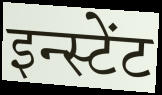
इन्स्टेंट